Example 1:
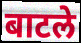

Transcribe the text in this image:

बाटले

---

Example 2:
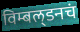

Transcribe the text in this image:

विम्बल्डनचं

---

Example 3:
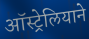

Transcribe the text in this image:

ऑस्ट्रेलियाने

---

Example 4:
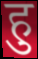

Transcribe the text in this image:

हु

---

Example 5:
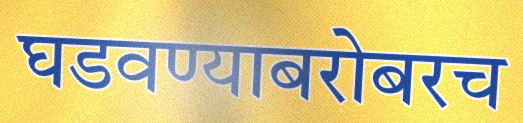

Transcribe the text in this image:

घडवण्याबरोबरच